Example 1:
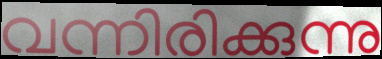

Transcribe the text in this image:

വന്നിരിക്കുന്നു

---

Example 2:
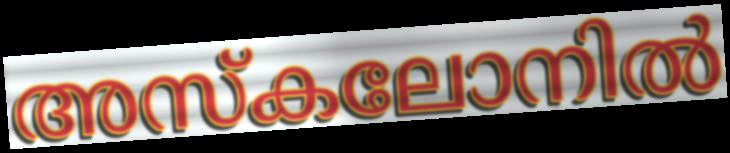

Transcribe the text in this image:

അസ്കലോനിൽ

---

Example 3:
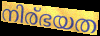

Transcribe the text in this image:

നിര്ഭയത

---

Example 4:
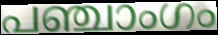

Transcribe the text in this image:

പഞ്ചാംഗം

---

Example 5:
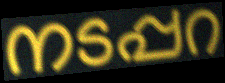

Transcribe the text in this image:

നടപ്പറ